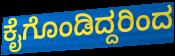
ಕೈಗೊಂಡಿದ್ದರಿಂದ